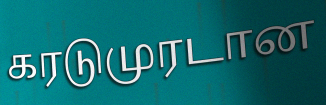
கரடுமுரடான